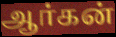
ஆர்கன்